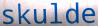
skulde